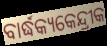
ବାର୍ଦ୍ଧକ୍ୟକେନ୍ଦ୍ରୀକ